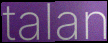
talan